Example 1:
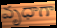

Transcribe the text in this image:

వృధాగా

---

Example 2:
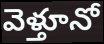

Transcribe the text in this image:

వెళ్తూనో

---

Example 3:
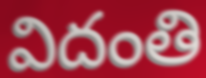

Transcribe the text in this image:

విదంతి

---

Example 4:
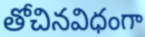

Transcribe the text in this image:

తోచినవిధంగా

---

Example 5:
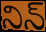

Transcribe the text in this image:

నిన్